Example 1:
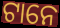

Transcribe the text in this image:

ଟାନେ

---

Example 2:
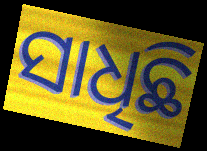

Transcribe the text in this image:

ସାଧିଛି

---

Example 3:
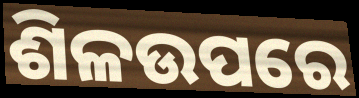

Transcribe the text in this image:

ଶିଳଉପରେ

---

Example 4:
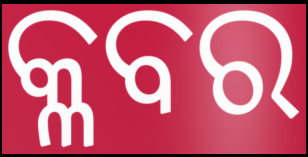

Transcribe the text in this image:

କ୍ଳବର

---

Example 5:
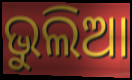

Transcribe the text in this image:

ଭୁଲିଆ